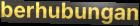
berhubungan